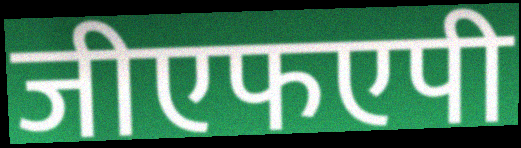
जीएफएपी